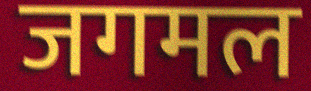
जगमल